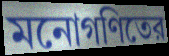
মনোগণিতের